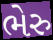
ભેરુ